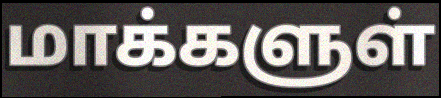
மாக்களுள்